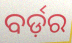
ବର୍ଡ଼ର